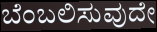
ಬೆಂಬಲಿಸುವುದೇ